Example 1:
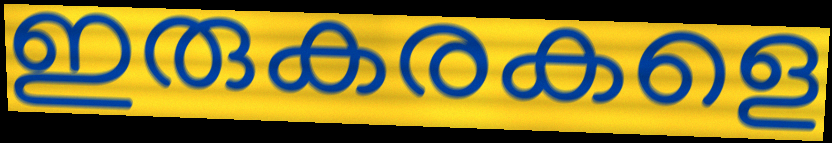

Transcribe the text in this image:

ഇരുകരകളെ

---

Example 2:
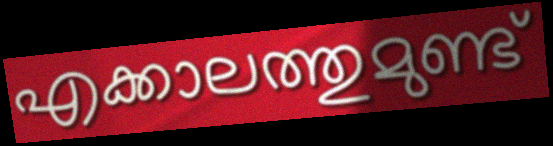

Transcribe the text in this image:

എക്കാലത്തുമുണ്ട്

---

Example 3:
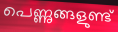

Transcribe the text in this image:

പെണ്ണുങ്ങളുണ്ട്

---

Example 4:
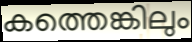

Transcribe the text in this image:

കത്തെങ്കിലും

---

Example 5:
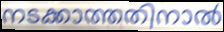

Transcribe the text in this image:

നടക്കാത്തതിനാൽ